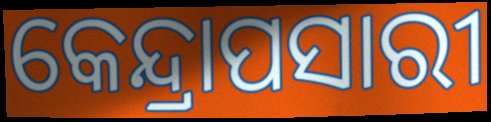
କେନ୍ଦ୍ରାପସାରୀ